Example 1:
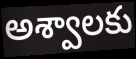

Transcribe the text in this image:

అశ్వాలకు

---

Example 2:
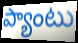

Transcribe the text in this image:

ప్యాంటు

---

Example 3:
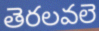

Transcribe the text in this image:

తెరలవలె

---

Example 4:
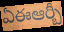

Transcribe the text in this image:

ఏఈఆర్బీ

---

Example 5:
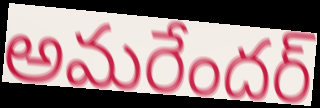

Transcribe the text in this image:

అమరేందర్